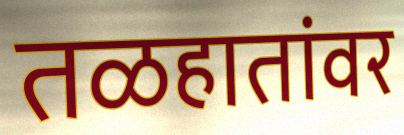
तळहातांवर